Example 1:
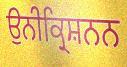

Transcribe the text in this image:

ਉਨੀਕ੍ਰਿਸ਼ਨਨ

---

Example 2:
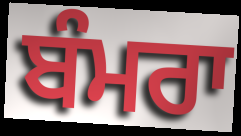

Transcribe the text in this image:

ਬੰਮਰਾ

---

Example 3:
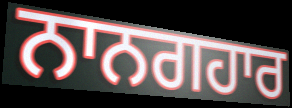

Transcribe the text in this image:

ਨਾਨਗਹਾਰ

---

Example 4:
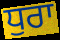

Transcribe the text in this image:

ਧੁਰਾ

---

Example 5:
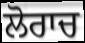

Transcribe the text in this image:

ਲੋਰਾਚ